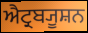
ਐਟ੍ਰਬ੍ਯੂਸ਼ਨ